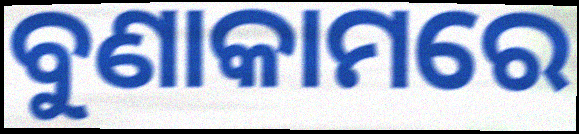
ବୁଣାକାମରେ